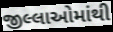
જીલ્લાઓમાંથી